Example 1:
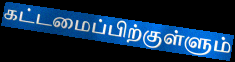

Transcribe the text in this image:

கட்டமைப்பிற்குள்ளும்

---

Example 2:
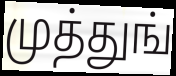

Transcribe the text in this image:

முத்துங்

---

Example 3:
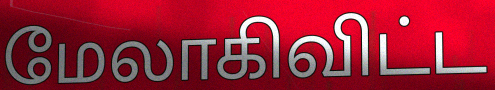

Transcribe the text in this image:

மேலாகிவிட்ட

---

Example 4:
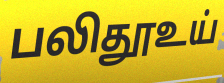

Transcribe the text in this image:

பலிதூஉய்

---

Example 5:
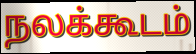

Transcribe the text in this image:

நலக்கூடம்